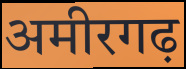
अमीरगढ़